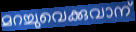
മറച്ചുവെക്കുവാന്